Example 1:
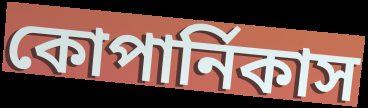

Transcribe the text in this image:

কোপার্নিকাস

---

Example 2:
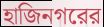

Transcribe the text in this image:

হাজিনগরের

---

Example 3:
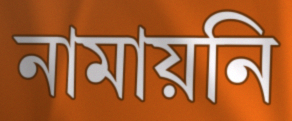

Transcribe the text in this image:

নামায়নি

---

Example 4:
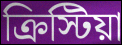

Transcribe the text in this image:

ক্রিস্টিয়া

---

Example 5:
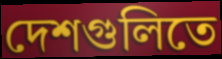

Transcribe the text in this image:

দেশগুলিতে